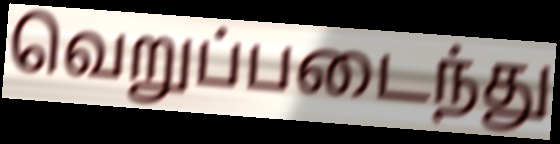
வெறுப்படைந்து